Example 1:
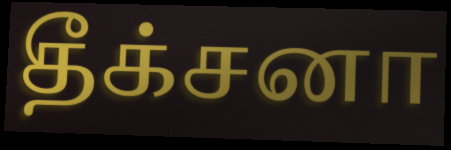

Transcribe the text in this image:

தீக்சனா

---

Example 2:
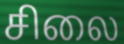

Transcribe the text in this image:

சிலை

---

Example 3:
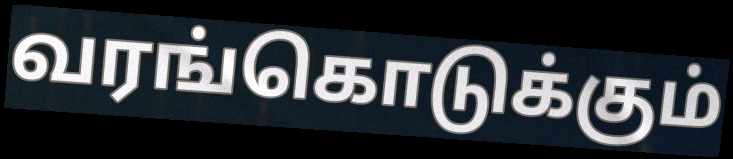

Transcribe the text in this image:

வரங்கொடுக்கும்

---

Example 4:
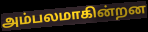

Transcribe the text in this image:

அம்பலமாகின்றன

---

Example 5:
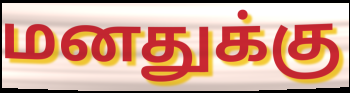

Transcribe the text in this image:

மனதுக்கு